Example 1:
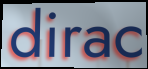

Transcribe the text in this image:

dirac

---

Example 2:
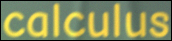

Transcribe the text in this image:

calculus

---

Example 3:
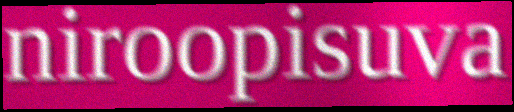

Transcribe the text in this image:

niroopisuva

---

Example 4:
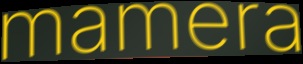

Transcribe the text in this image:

mamera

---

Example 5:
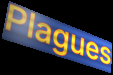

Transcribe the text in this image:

Plagues